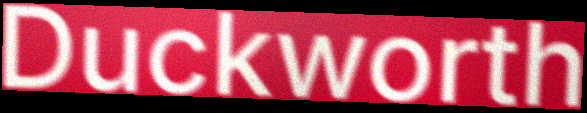
Duckworth